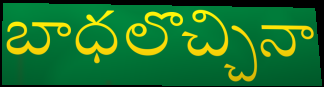
బాధలొచ్చినా